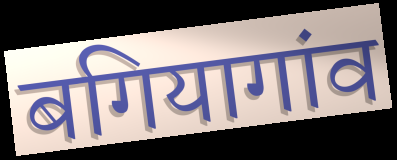
बगियागांव